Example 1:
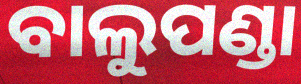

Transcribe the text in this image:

ବାଲୁପଣ୍ଡା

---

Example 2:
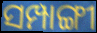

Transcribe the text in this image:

ସମ୍ପାଙ୍ଗୀ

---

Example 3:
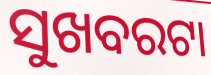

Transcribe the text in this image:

ସୁଖବରଟା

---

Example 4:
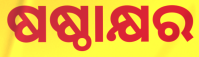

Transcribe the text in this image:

ଷଷ୍ଠାକ୍ଷର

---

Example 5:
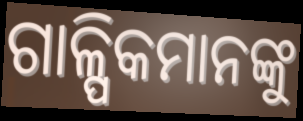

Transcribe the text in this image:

ଗାଳ୍ପିକମାନଙ୍କୁ